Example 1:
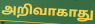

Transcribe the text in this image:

அறிவாகாது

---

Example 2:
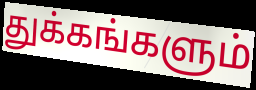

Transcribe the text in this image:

துக்கங்களும்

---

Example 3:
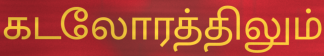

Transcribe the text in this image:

கடலோரத்திலும்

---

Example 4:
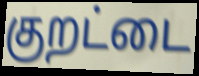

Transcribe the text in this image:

குறட்டை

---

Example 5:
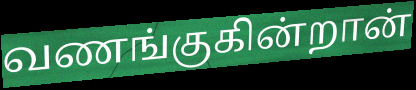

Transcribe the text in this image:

வணங்குகின்றான்